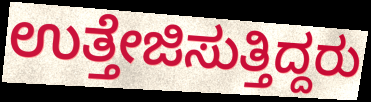
ಉತ್ತೇಜಿಸುತ್ತಿದ್ದರು